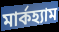
মার্কহ্যাম